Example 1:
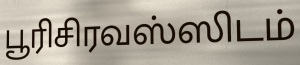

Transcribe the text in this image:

பூரிசிரவஸ்ஸிடம்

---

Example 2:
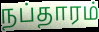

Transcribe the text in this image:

நப்தாரம்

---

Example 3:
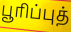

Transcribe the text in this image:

பூரிப்புத்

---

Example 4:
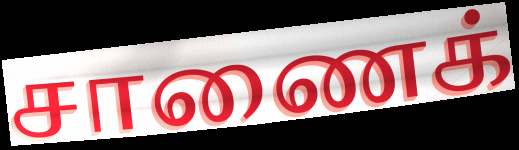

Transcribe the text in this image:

சாணைக்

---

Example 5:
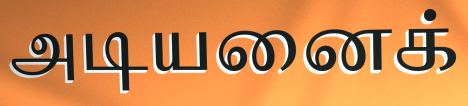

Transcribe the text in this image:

அடியனைக்